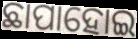
ଛାପାହୋଇ